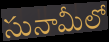
సునామీలో